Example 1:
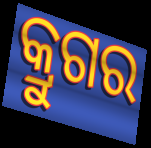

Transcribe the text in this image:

କ୍ରୁଗର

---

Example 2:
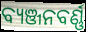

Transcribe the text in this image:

ବ୍ୟଞ୍ଜନବର୍ଣ୍ଣ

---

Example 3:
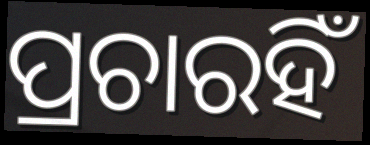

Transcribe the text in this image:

ପ୍ରଚାରହିଁ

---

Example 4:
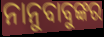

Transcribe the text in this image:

ନାନୁବାବୁଙ୍କର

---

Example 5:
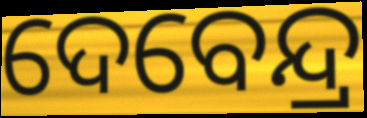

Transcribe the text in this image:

ଦେବେନ୍ଦ୍ର